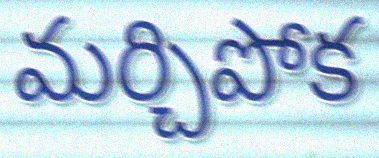
మర్చిపోక